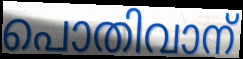
പൊതിവാന്